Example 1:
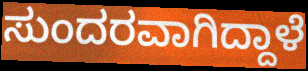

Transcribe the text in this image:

ಸುಂದರವಾಗಿದ್ದಾಳೆ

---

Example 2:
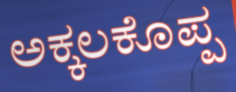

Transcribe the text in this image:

ಅಕ್ಕಲಕೊಪ್ಪ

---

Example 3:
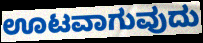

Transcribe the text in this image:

ಊಟವಾಗುವುದು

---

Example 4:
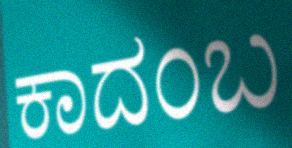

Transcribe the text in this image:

ಕಾದಂಬ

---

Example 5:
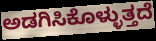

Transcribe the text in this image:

ಅಡಗಿಸಿಕೊಳ್ಳುತ್ತದೆ